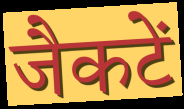
जैकटें